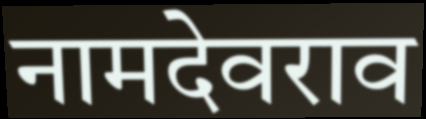
नामदेवराव